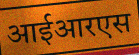
आईआरएस